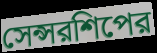
সেন্সরশিপের